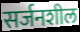
सर्जनशील